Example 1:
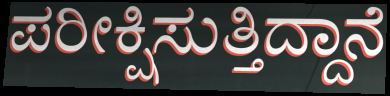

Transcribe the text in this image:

ಪರೀಕ್ಷಿಸುತ್ತಿದ್ದಾನೆ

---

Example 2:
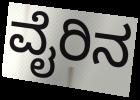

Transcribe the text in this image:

ವೈರಿನ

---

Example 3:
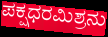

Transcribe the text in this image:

ಪಕ್ಷಧರಮಿಶ್ರನು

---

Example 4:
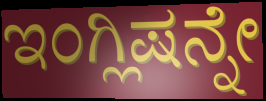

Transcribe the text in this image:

ಇಂಗ್ಲಿಷನ್ನೇ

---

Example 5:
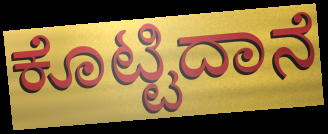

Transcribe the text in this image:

ಕೊಟ್ಟಿದಾನೆ